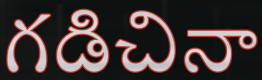
గడిచినా